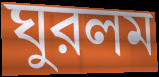
ঘুরলম